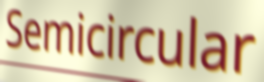
Semicircular